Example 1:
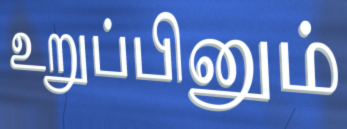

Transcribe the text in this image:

உறுப்பினும்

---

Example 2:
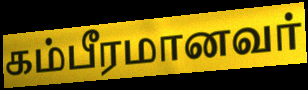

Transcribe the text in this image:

கம்பீரமானவர்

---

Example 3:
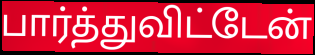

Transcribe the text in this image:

பார்த்துவிட்டேன்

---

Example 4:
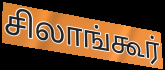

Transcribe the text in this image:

சிலாங்கூர்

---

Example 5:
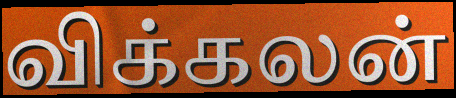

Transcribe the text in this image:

விக்கலன்